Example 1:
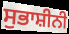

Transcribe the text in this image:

ਸੁਭਾਸ਼ੀਨੀ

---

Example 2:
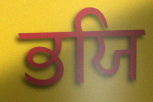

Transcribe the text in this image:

ਭਯਿ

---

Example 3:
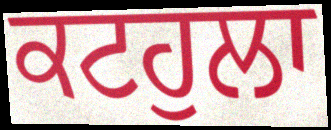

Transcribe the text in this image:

ਕਟਹੁਲਾ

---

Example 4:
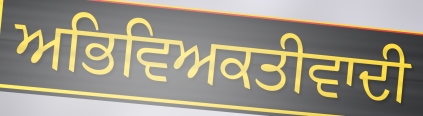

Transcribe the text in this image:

ਅਭਿਵਿਅਕਤੀਵਾਦੀ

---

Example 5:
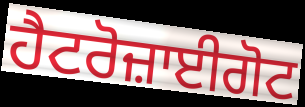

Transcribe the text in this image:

ਹੈਟਰੋਜ਼ਾਈਗੋਟ